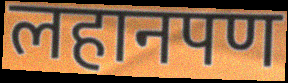
लहानपण